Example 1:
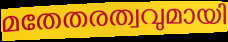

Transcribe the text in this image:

മതേതരത്വവുമായി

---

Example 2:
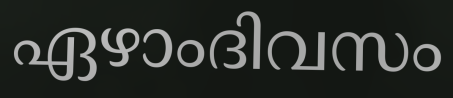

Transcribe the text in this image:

ഏഴാംദിവസം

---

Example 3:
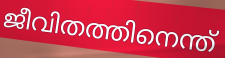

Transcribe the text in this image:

ജീവിതത്തിനെന്ത്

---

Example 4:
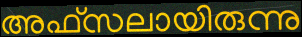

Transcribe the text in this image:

അഫ്സലായിരുന്നു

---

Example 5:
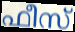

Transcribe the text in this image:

ഫീസ്